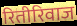
रितीरिवाज